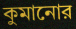
কুমানোর